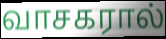
வாசகரால்